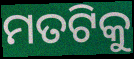
ମତଟିକୁ